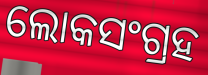
ଲୋକସଂଗ୍ରହ